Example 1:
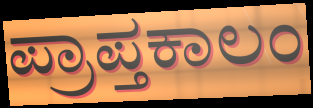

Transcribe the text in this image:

ಪ್ರಾಪ್ತಕಾಲಂ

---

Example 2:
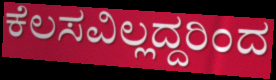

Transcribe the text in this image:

ಕೆಲಸವಿಲ್ಲದ್ದರಿಂದ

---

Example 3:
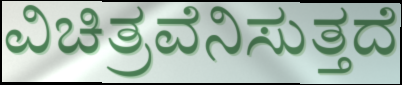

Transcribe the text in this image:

ವಿಚಿತ್ರವೆನಿಸುತ್ತದೆ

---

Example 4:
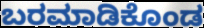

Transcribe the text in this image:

ಬರಮಾಡಿಕೊಂಡ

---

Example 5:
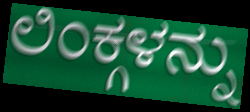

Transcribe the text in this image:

ಲಿಂಕ್ಗಳನ್ನು